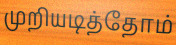
முறியடித்தோம்